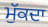
ਮੁੱਕਦਾ